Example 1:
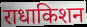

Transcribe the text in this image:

राधाकिशन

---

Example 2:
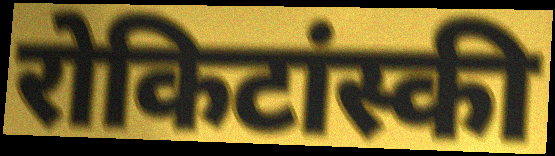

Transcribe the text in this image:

रोकिटांस्की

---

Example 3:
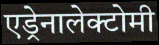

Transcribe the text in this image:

एड्रेनालेक्टोमी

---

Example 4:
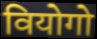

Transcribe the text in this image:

वियोगो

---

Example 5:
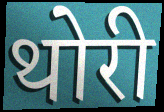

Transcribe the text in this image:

थोरी